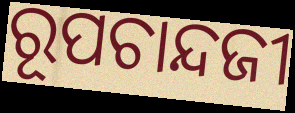
ରୂପଚାନ୍ଦଜୀ